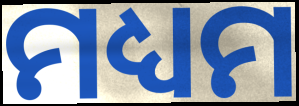
ମଧ୍ୟମ